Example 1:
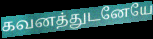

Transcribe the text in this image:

கவனத்துடனேயே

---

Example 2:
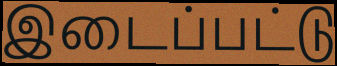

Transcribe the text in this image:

இடைப்பட்டு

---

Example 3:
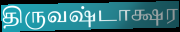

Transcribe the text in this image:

திருவஷ்டாக்ஷர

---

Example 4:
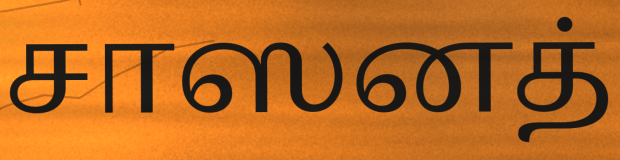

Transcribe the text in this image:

சாஸனத்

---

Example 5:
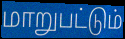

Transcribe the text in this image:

மாறுபட்டும்